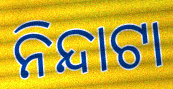
ନିନ୍ଦାଟା